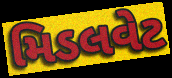
મિડલવેટ